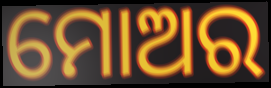
ମୋଅର